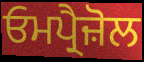
ਓਮਪ੍ਰੈਜ਼ੋਲ